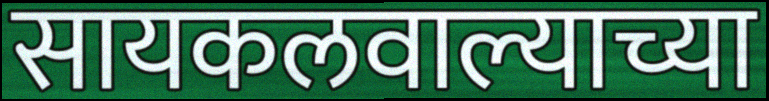
सायकलवाल्याच्या